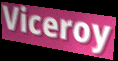
Viceroy